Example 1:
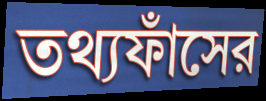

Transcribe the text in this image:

তথ্যফাঁসের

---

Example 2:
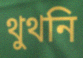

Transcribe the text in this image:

থুথনি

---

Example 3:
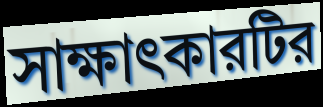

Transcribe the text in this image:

সাক্ষাৎকারটির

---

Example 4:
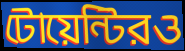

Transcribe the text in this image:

টোয়েন্টিরও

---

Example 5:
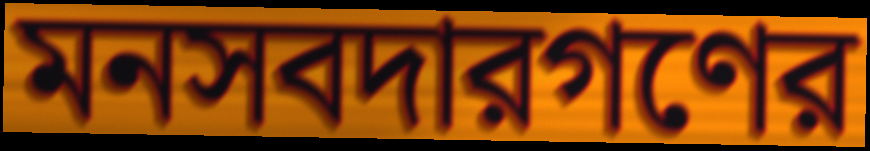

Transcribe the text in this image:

মনসবদারগণের